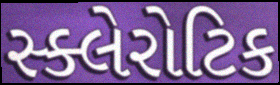
સ્ક્લેરોટિક